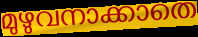
മുഴുവനാക്കാതെ